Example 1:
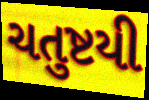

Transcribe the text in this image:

ચતુષ્ટયી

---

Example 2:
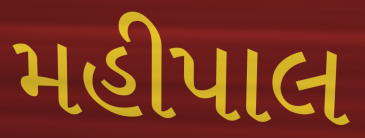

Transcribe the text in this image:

મહીપાલ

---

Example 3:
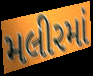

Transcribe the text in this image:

મલીરમાં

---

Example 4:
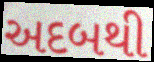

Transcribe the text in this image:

અદબથી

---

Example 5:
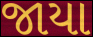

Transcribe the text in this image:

જાયા